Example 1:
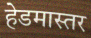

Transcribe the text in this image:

हेडमास्तर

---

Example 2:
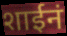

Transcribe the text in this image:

शाईनं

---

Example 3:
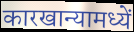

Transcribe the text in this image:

कारखान्यामध्यें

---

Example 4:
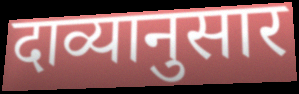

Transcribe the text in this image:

दाव्यानुसार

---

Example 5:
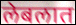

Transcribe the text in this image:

लेबलात